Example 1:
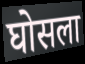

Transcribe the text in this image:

घोसला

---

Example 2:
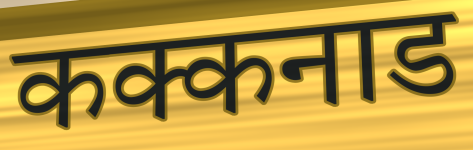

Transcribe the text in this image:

कक्कनाड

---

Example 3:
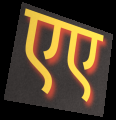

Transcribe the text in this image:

एए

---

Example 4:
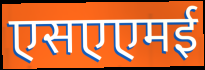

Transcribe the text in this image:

एसएएमई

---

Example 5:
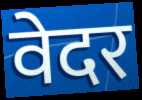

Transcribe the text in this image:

वेदर